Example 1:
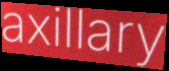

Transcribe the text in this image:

axillary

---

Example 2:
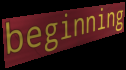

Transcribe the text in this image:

beginning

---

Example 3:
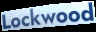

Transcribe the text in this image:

Lockwood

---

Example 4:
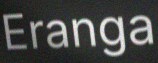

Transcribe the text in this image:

Eranga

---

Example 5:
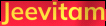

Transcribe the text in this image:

Jeevitam